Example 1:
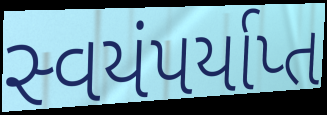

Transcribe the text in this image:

સ્વયંપર્યાપ્ત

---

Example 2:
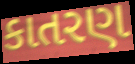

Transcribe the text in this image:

કાતરણ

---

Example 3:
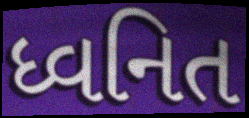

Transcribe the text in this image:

ધ્વનિત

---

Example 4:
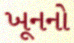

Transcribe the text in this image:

ખૂનનો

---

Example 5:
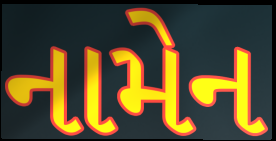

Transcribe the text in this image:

નામેન